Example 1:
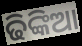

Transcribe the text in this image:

ଢିଙ୍କିଆ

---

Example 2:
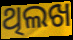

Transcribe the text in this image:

ଥିଲଖ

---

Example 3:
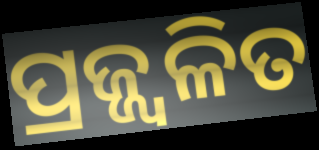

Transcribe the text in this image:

ପ୍ରଜ୍ଜ୍ବଳିତ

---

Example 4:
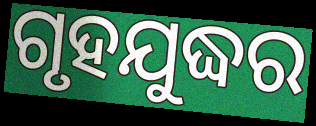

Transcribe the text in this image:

ଗୃହଯୁଦ୍ଧର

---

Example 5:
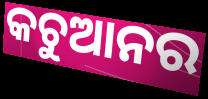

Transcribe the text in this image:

କଚୁଆନର